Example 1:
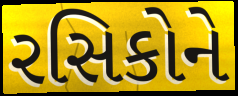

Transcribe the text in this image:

રસિકોને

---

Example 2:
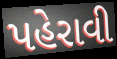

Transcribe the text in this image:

પહેરાવી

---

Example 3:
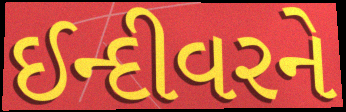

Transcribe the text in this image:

ઈન્દીવરને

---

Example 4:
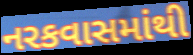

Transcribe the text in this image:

નરકવાસમાંથી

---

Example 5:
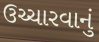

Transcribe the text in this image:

ઉચ્ચારવાનું